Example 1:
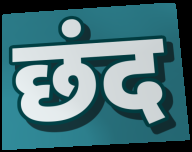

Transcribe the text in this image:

छंद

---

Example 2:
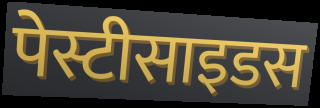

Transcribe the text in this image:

पेस्टीसाइडस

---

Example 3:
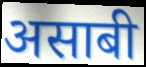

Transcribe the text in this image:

असाबी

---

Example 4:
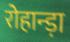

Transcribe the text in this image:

रोहान्ड़ा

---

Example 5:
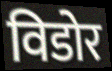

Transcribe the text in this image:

विडोर